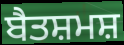
ਬੈਤਸ਼ਮਸ਼